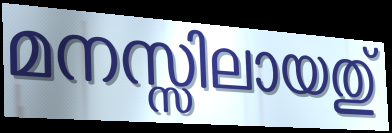
മനസ്സിലായതു്